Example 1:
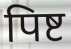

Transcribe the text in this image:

पिष्ट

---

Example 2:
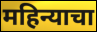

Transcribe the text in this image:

महिन्याचा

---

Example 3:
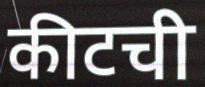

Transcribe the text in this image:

कीटची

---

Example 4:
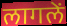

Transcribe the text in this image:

लागलें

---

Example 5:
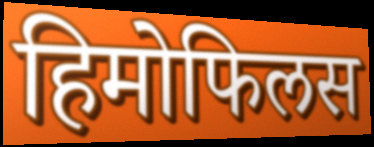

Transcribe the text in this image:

हिमोफिलस